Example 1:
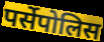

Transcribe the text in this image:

पर्सेपोलिस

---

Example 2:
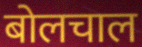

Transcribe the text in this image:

बोलचाल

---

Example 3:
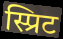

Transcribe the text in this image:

स्प्रिट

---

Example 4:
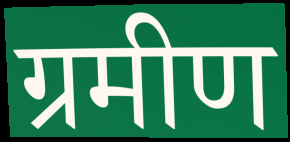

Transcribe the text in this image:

ग्रमीण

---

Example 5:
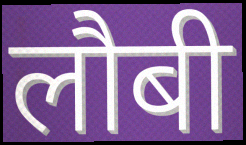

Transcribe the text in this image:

लौबी